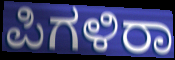
ಪಿಗಳಿರಾ